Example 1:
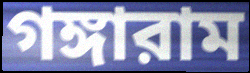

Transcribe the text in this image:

গঙ্গারাম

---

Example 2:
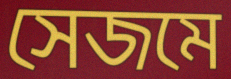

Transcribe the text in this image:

সেজমে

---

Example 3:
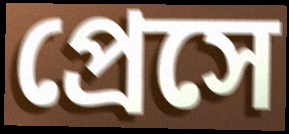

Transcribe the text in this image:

প্রেসে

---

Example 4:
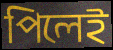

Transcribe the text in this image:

পিলেই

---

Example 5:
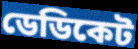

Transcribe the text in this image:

ডেডিকেট